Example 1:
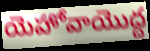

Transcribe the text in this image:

యెహోవాయొద్ద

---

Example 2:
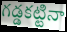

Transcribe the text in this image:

గడ్డకట్టినా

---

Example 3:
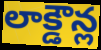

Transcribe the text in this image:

లాక్డౌన్ల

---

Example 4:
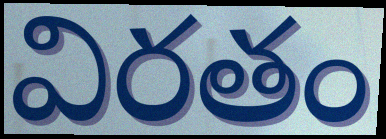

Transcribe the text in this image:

విరతం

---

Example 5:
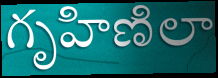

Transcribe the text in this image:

గృహిణిలా